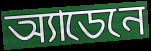
অ্যাডেনে